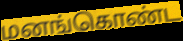
மனங்கொண்ட